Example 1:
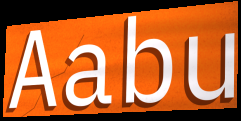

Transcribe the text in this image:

Aabu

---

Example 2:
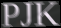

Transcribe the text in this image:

PJK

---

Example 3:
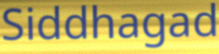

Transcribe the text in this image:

Siddhagad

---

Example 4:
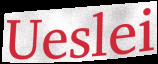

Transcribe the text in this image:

Ueslei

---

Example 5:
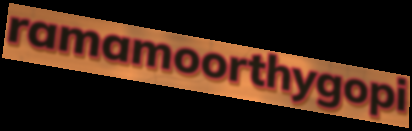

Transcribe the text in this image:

ramamoorthygopi